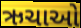
ઋચાઓ